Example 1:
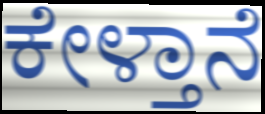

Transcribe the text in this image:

ಕೇಳ್ತಾನೆ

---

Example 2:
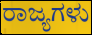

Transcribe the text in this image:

ರಾಜ್ಯಗಳು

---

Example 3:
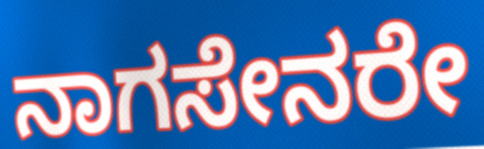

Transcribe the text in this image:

ನಾಗಸೇನರೇ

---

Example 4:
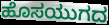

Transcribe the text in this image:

ಹೊಸಯುಗದ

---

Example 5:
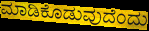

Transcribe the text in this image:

ಮಾಡಿಕೊಡುವುದೆಂದು